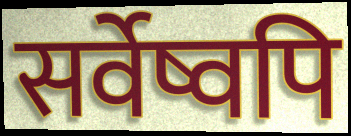
सर्वेष्वपि